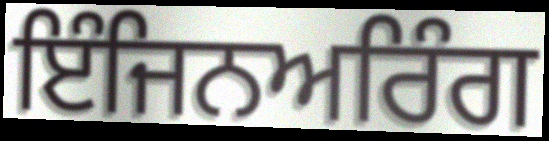
ਇੰਜਿਨਅਰਿੰਗ